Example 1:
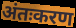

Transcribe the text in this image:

अंतःकरण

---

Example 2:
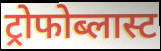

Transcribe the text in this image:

ट्रोफोब्लास्ट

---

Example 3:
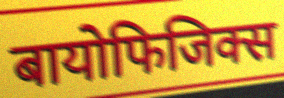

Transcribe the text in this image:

बायोफिजिक्स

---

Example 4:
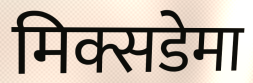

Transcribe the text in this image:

मिक्सडेमा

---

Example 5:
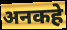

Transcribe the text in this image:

अनकहे